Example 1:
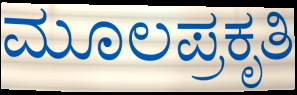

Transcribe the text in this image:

ಮೂಲಪ್ರಕೃತಿ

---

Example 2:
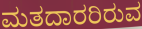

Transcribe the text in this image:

ಮತದಾರರಿರುವ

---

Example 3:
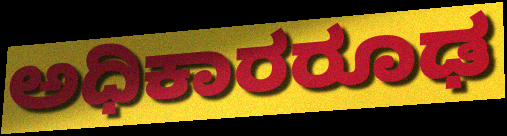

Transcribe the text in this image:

ಅಧಿಕಾರರೂಢ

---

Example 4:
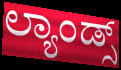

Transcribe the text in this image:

ಲ್ಯಾಂಡ್ಸ್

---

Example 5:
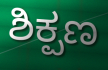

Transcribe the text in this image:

ಶಿಕ್ಪಣ